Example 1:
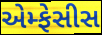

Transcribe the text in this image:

એમ્ફેસીસ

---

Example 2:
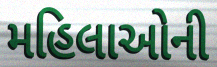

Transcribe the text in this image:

મહિલાઓની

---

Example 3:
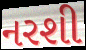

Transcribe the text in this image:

નરશી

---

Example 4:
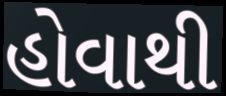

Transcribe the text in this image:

હોવાથી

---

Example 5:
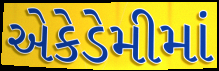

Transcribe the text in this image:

એકેડેમીમાં